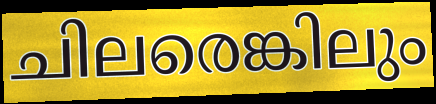
ചിലരെങ്കിലും